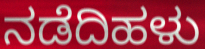
ನಡೆದಿಹಳು